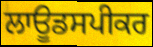
ਲਾਊਡਸਪੀਕਰ